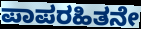
ಪಾಪರಹಿತನೇ